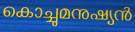
കൊച്ചുമനുഷ്യൻ